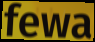
fewa